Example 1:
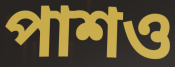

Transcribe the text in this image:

পাশও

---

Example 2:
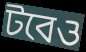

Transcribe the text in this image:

টবেও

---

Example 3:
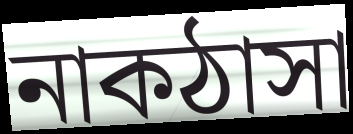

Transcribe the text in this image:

নাকঠাসা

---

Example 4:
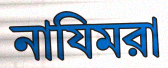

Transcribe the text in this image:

নাযিমরা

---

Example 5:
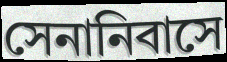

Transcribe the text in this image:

সেনানিবাসে